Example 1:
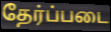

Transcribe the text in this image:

தேர்ப்படை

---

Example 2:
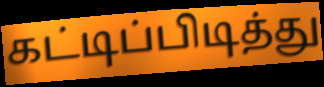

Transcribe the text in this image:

கட்டிப்பிடித்து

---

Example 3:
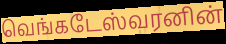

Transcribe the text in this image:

வெங்கடேஸ்வரனின்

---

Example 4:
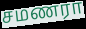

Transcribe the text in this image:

சமணரா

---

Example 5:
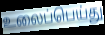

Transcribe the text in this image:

உலைப்பெய்து